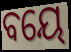
ବୟେ